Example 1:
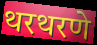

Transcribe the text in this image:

थरथरणे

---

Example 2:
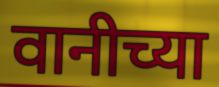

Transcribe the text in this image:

वानीच्या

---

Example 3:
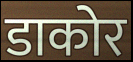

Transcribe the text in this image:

डाकोर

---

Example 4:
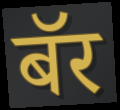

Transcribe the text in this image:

बॅर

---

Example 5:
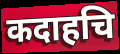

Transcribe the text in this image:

कदाहचि